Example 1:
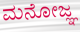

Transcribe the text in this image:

ಮನೋಜ್ಞ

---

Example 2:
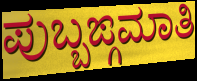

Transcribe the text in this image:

ಪುಬ್ಬಙ್ಗಮಾತಿ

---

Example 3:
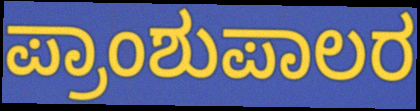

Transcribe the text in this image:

ಪ್ರಾಂಶುಪಾಲರ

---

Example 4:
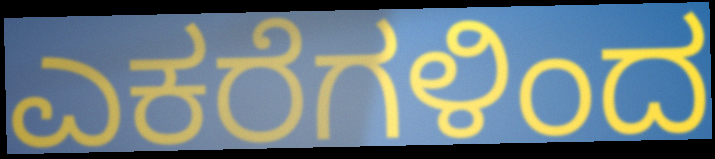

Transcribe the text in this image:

ಎಕರೆಗಳಿಂದ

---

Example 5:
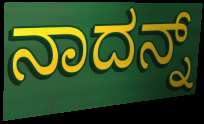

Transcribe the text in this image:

ನಾದನ್ನ್